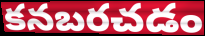
కనబరచడం